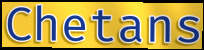
Chetans